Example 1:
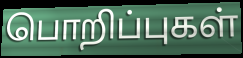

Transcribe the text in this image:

பொறிப்புகள்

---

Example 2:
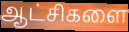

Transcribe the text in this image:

ஆட்சிகளை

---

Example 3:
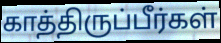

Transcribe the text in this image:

காத்திருப்பீர்கள்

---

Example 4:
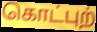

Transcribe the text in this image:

கொட்புற்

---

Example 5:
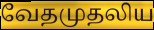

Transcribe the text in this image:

வேதமுதலிய